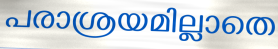
പരാശ്രയമില്ലാതെ